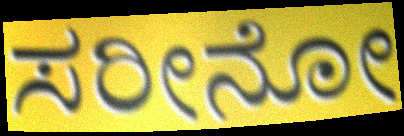
ಸರೀನೋ